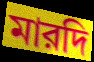
মারদি